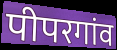
पीपरगांव